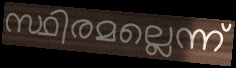
സ്ഥിരമല്ലെന്ന്